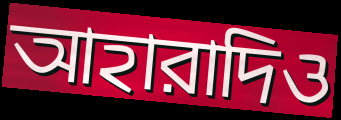
আহারাদিও